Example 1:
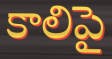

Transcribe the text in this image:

కాలిపై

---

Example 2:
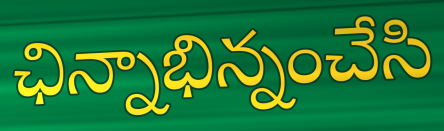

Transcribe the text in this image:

ఛిన్నాభిన్నంచేసి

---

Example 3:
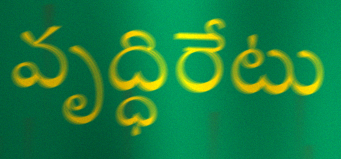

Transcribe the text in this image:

వృద్ధిరేటు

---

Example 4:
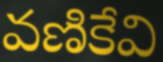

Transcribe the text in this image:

వణికేవి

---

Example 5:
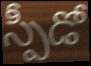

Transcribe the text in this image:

స్పీడో